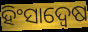
ହିଂସାଦ୍ୱେଷ